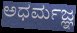
ಅಧರ್ಮಜ್ಞ